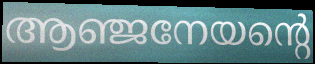
ആഞ്ജനേയന്റെ